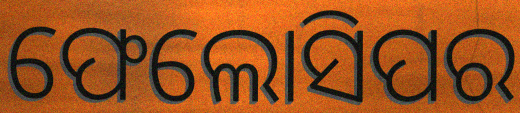
ଫେଲୋସିପର